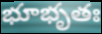
భూభృతః